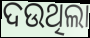
ଦଉଥିଲା